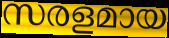
സരളമായ